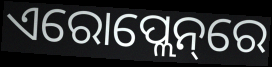
ଏରୋପ୍ଲେନ୍‌ରେ